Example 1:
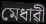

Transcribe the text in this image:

মেধাৱী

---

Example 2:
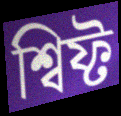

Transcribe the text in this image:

শ্বিফ্ট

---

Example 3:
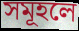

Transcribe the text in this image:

সমূহলে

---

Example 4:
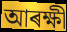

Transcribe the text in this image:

আৰক্ষী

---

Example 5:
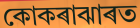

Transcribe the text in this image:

কোকৰাঝাৰত